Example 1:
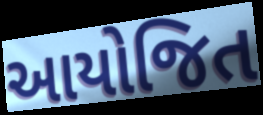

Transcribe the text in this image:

આયોજિત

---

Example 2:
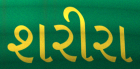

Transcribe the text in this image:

શરીરા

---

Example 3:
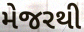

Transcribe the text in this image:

મેજરથી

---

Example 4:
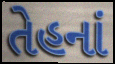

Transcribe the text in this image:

તેહનાં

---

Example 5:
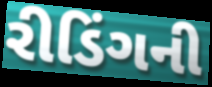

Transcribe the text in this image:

રીડિંગની